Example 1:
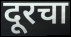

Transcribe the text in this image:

दूरचा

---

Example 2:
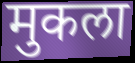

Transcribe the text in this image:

मुकला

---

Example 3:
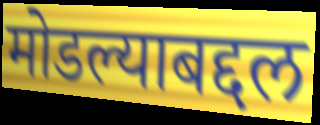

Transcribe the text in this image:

मोडल्याबद्दल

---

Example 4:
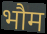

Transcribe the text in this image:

भौम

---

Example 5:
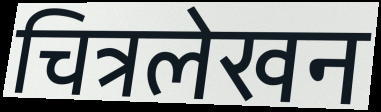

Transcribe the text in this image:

चित्रलेखन